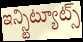
ఇన్స్టిట్యూట్స్